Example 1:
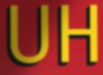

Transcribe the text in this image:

UH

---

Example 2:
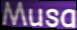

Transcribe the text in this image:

Musa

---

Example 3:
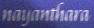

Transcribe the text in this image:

nayanthara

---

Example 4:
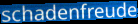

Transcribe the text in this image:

schadenfreude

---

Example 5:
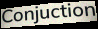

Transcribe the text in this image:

Conjuction